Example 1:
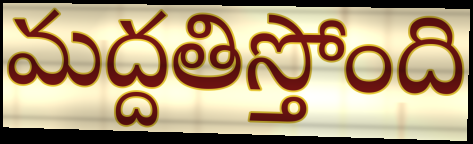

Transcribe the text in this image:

మద్దతిస్తోంది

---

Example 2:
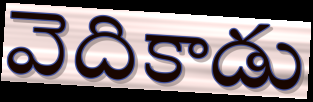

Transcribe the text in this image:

వెదికాడు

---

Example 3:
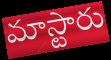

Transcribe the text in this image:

మాస్టారు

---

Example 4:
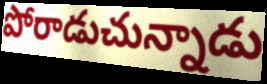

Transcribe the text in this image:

పోరాడుచున్నాడు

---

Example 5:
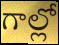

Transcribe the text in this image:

గాల్లో